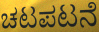
ಚಟಪಟನೆ